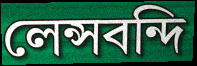
লেন্সবন্দি